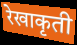
रेखाकृती